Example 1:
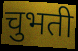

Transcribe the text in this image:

चुभती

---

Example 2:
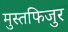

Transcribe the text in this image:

मुस्तफिजुर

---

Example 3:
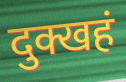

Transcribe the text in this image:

दुक्खहं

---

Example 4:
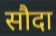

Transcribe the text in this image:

सौदा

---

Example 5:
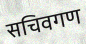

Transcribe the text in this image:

सचिवगण